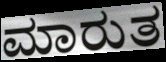
ಮಾರುತ